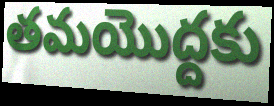
తమయొద్దకు